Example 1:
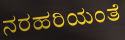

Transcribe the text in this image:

ನರಹರಿಯಂತೆ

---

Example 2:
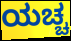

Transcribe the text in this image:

ಯಚ್ಚ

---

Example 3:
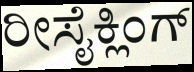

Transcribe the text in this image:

ರೀಸೈಕ್ಲಿಂಗ್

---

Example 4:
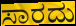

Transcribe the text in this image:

ಸಾರದು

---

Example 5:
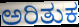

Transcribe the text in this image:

ಅರಿತುಕ